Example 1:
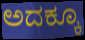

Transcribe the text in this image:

ಅದಕ್ಕೂ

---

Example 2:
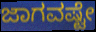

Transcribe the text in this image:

ಜಾಗವಷ್ಟೇ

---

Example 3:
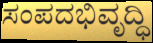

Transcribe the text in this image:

ಸಂಪದಭಿವೃದ್ಧಿ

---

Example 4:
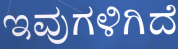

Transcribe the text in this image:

ಇವುಗಳಿಗಿದೆ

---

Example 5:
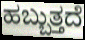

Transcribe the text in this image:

ಹಬ್ಬುತ್ತದೆ